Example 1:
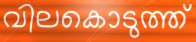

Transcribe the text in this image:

വിലകൊടുത്ത്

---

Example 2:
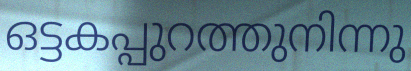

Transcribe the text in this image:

ഒട്ടകപ്പുറത്തുനിന്നു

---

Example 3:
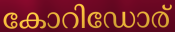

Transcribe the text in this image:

കോറിഡോര്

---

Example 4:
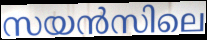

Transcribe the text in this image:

സയൻസിലെ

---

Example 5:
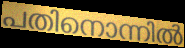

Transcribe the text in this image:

പതിനൊന്നിൽ